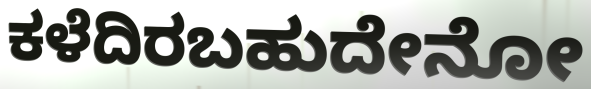
ಕಳೆದಿರಬಹುದೇನೋ